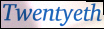
Twentyeth